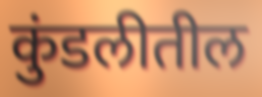
कुंडलीतील